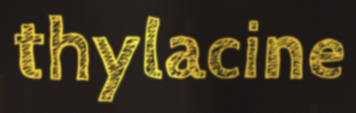
thylacine